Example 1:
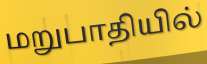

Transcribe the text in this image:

மறுபாதியில்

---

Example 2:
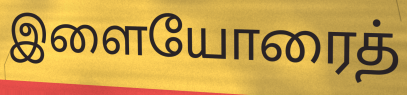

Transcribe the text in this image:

இளையோரைத்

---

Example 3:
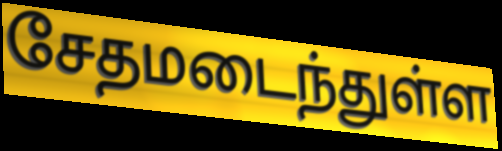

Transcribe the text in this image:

சேதமடைந்துள்ள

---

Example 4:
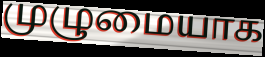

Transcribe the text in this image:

முழுமையாக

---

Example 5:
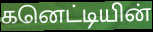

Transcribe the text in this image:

கனெட்டியின்